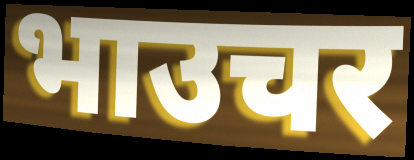
भाउचर